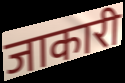
जाकारी